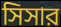
সিসার